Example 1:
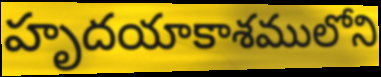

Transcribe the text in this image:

హృదయాకాశములోని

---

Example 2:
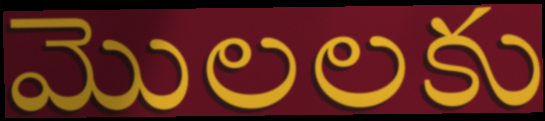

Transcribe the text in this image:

మొలలకు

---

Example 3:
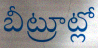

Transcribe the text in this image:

బీట్రూట్లో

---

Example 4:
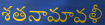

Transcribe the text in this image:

శతనామావళీ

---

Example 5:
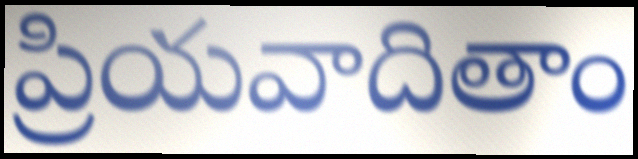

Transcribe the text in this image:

ప్రియవాదితాం